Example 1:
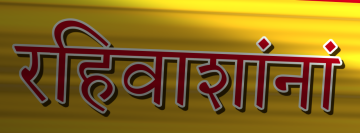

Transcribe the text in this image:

रहिवाशांनां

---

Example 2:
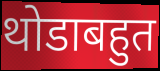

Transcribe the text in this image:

थोडाबहुत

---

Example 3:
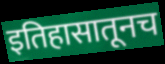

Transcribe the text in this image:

इतिहासातूनच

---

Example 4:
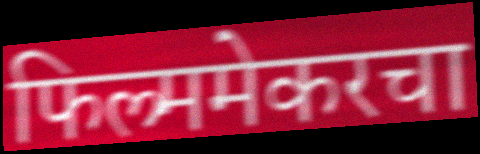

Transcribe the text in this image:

फिल्ममेकरचा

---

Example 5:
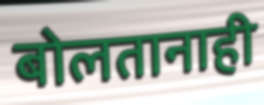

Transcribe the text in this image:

बोलतानाही